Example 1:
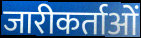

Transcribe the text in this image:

जारीकर्ताओं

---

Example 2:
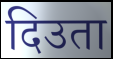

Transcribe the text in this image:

दिउता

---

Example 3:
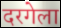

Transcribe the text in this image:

दरगेला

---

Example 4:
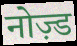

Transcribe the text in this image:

नोज़्ड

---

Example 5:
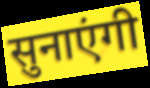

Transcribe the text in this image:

सुनाएंगी